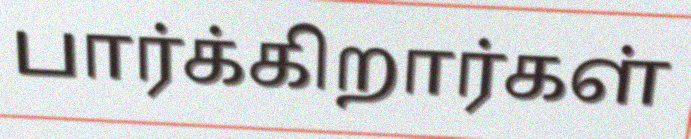
பார்க்கிறார்கள்